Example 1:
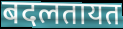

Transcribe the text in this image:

बदलतायत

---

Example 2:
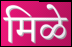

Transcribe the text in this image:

मिळे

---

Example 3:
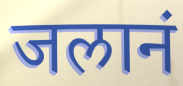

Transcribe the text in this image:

जलानं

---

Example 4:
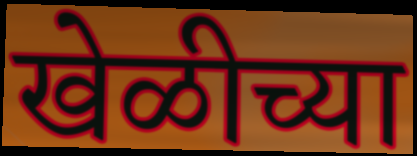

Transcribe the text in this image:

खेळीच्या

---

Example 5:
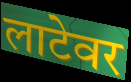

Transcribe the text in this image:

लाटेवर